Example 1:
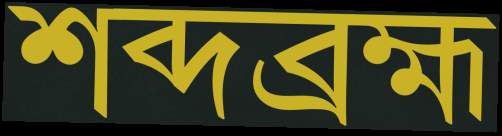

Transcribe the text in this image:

শব্দব্রহ্ম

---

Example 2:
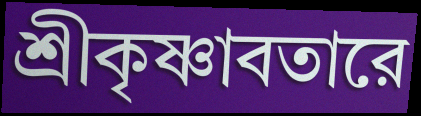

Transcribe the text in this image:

শ্রীকৃষ্ণাবতারে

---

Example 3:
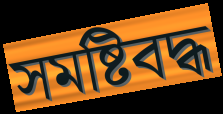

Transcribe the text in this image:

সমষ্টিবদ্ধ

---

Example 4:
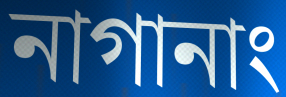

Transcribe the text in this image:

নাগানাং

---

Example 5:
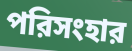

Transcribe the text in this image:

পরিসংহার